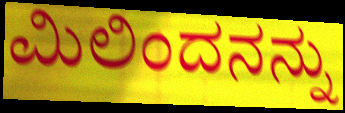
ಮಿಲಿಂದನನ್ನು